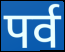
पर्व